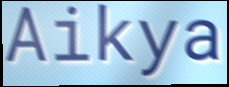
Aikya